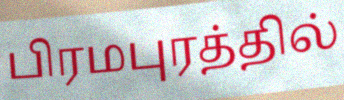
பிரமபுரத்தில்